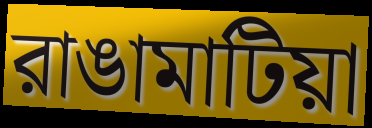
রাঙামাটিয়া